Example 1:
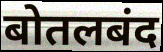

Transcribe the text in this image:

बोतलबंद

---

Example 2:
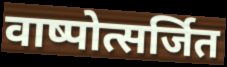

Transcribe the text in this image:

वाष्पोत्सर्जित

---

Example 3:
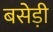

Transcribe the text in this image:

बसेड़ी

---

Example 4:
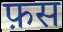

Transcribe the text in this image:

फ़स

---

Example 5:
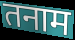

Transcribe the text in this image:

तनाम